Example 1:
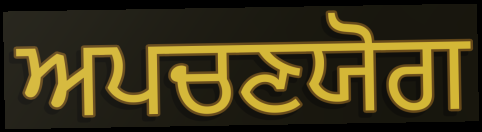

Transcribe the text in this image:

ਅਪਚਣਯੋਗ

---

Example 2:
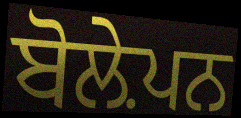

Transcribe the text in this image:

ਬੋਲ਼ੇਪਨ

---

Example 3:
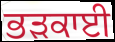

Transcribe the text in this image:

ਭੜਕਾਈ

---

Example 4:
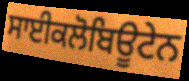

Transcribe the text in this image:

ਸਾਈਕਲੋਬਿਊਟੇਨ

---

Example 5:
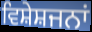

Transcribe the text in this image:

ਵਿਸ਼ੇਸ਼ਜਨਾਂ